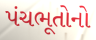
પંચભૂતોનો